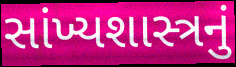
સાંખ્યશાસ્ત્રનું